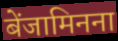
बेंजामिनना